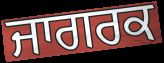
ਜਾਗਰਕ